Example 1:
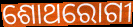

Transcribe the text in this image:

ଶୋଥରୋଗୀ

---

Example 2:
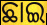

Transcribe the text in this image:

ଛାଇ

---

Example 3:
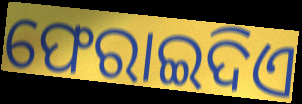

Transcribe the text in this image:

ଫେରାଇଦିଏ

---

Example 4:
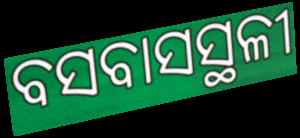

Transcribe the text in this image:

ବସବାସସ୍ଥଳୀ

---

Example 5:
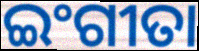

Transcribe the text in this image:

ଇଂଗୀତା